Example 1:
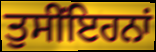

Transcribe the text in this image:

ਤੁਸੀਂਇਹਨਾਂ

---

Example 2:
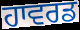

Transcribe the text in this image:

ਹਾਵਰਡ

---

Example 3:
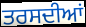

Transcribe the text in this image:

ਤਰਸਦੀਆਂ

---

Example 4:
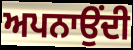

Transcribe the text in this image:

ਅਪਨਾਉਂਦੀ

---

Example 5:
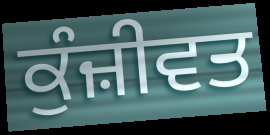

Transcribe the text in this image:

ਕੁੰਜ਼ੀਵਤ